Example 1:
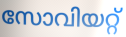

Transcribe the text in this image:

സോവിയറ്റ്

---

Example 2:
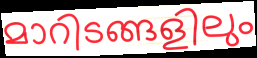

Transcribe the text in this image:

മാറിടങ്ങളിലും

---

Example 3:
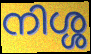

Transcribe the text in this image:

നിശ്ശ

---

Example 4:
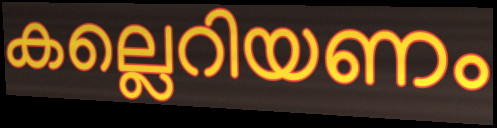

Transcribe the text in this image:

കല്ലെറിയണം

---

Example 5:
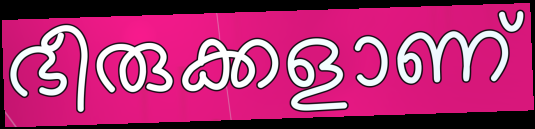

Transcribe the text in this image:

ഭീരുക്കളാണ്